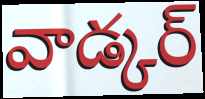
వాడ్కర్